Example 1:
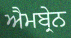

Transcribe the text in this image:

ਐਮਬ੍ਰੇਨ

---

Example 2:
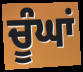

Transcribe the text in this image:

ਚੂੰਘਾਂ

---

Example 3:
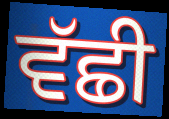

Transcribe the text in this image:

ਵੱਛੀ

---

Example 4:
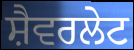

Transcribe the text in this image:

ਸ਼ੈਵਰਲੇਟ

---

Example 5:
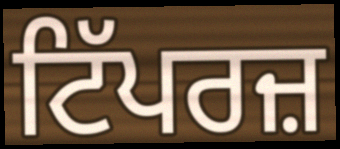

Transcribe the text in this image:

ਟਿੱਪਰਜ਼